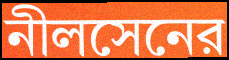
নীলসেনের